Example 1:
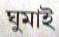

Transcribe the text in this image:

ঘুমাই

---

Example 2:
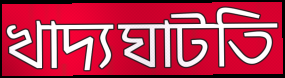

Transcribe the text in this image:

খাদ্যঘাটতি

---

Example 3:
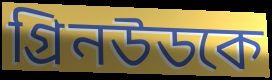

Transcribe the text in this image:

গ্রিনউডকে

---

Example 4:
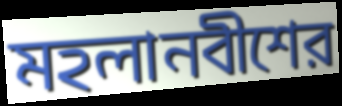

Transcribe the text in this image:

মহলানবীশের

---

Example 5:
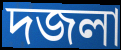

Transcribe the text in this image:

দজলা